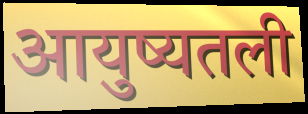
आयुष्यतली